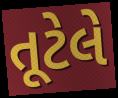
તૂટેલે